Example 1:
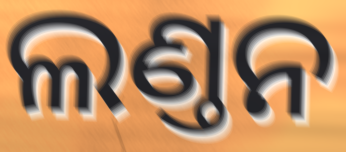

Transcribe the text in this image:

ଲଣ୍ତନ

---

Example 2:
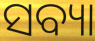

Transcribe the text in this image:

ସବ୍ୟା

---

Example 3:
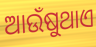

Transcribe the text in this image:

ଆଉଁଷୁଥାଏ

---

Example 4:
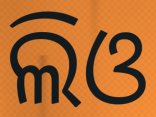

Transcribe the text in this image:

ଲିଓ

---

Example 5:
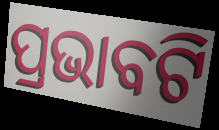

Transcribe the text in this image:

ପ୍ରଭାବଟି